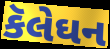
કૅલેઘન